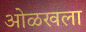
ओळखला